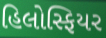
હિલોસ્ફિયર